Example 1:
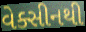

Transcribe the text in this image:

વેક્સીનથી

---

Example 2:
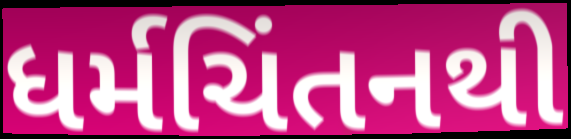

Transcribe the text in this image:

ધર્મચિંતનથી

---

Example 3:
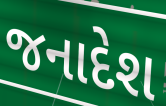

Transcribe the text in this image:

જનાદેશ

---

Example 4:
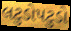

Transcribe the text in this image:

લટુડોપટુડો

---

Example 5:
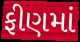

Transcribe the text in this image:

ફીણમાં